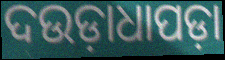
ଦଉଡ଼ାଧାପଡ଼ା